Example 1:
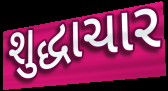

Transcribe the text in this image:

શુદ્ધાચાર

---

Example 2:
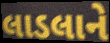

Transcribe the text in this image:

લાડલાને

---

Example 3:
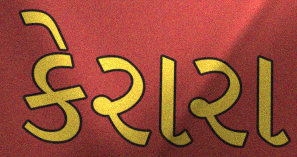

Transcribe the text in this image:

કેરારા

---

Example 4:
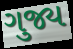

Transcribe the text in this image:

ગુજ્ય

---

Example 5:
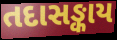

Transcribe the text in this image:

તદાસઙ્કાય